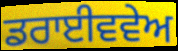
ਡਰਾਈਵਵੇਅ